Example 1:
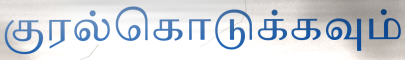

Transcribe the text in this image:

குரல்கொடுக்கவும்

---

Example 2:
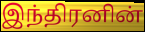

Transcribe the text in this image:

இந்திரனின்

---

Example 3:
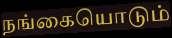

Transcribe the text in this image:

நங்கையொடும்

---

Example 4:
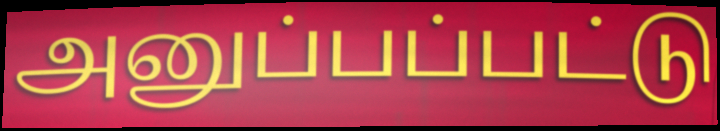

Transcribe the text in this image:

அனுப்பப்பட்டு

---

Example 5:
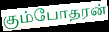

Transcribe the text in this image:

கும்போதரன்